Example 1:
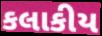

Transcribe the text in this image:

કલાકીય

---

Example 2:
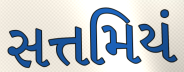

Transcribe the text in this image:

સત્તમિયં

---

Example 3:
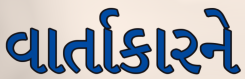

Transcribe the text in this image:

વાર્તાકારને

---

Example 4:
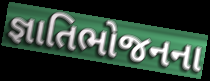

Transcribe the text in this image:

જ્ઞાતિભોજનના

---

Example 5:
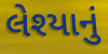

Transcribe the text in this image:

લેશ્યાનું